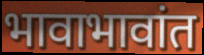
भावाभावांत